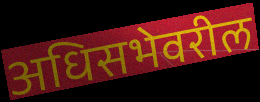
अधिसभेवरील